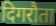
दिगरौता